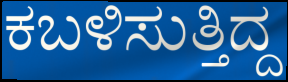
ಕಬಳಿಸುತ್ತಿದ್ದ